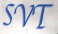
SVT